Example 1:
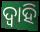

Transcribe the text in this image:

ଦ୍ୱାହି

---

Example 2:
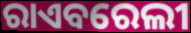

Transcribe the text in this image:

ରାଏବରେଲୀ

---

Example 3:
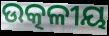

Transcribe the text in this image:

ଉତ୍କଳୀୟ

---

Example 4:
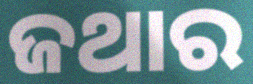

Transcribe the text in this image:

ଜଥାର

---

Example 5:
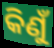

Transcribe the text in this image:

କିଣୁଁ